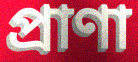
প্রাণা